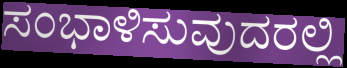
ಸಂಭಾಳಿಸುವುದರಲ್ಲಿ